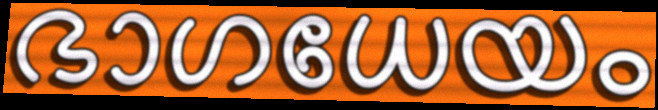
ഭാഗധേയം